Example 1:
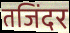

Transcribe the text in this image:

तजिंदर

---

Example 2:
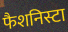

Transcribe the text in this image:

फैशनिस्टा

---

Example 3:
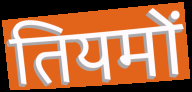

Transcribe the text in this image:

तियमों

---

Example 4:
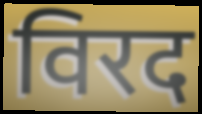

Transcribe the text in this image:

विरद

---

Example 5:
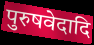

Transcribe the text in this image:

पुरुषवेदादि